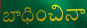
బాధించినా